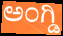
ಅಂಗ್ಡಿ